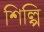
শিল্পি